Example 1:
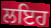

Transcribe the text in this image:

ਲਇਹ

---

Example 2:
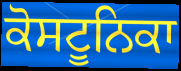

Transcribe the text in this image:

ਕੋਸਟੂਨਿਕਾ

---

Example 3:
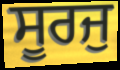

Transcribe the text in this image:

ਸੂਰਜੁ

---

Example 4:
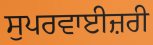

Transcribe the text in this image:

ਸੁਪਰਵਾਈਜ਼ਰੀ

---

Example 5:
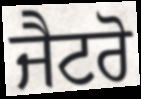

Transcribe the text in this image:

ਜੈਟਰੋ